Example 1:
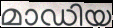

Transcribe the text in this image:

മാഡിയ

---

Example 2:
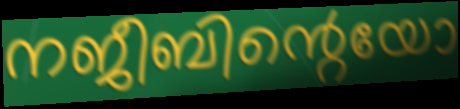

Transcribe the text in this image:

നജീബിന്റെയോ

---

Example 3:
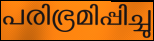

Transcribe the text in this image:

പരിഭ്രമിപ്പിച്ചു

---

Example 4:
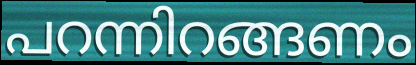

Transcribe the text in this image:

പറന്നിറങ്ങണം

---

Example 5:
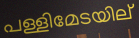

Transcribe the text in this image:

പള്ളിമേടയില്